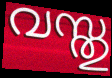
വസ്തു